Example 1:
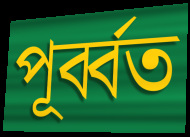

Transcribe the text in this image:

পূৰ্ব্বত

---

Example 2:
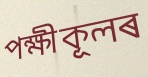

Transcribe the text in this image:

পক্ষীকূলৰ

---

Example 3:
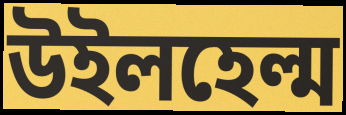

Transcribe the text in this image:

উইলহেল্ম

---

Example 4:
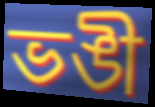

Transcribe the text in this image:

ভঙী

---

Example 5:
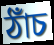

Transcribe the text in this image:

ঠাঁচ